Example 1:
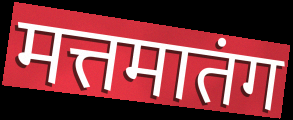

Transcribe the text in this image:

मत्तमातंग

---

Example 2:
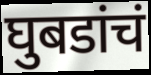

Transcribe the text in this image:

घुबडांचं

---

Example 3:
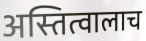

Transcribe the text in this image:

अस्तित्वालाच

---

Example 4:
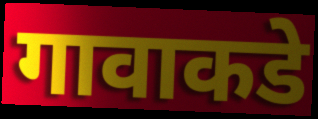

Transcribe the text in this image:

गावाकडे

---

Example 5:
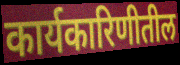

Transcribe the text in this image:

कार्यकारिणीतील